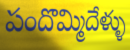
పందొమ్మిదేళ్ళు